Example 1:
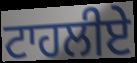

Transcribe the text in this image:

ਟਾਹਲੀਏ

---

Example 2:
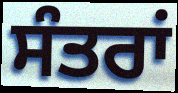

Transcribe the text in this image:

ਸੰਤਰਾਂ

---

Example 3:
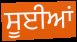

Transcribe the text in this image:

ਸੂਈਆਂ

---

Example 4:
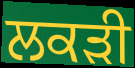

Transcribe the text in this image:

ਲਕੜੀ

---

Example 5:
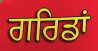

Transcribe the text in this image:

ਗਰਿਡਾਂ